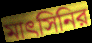
মাৎসিনির